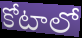
కోటాలో